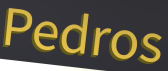
Pedros